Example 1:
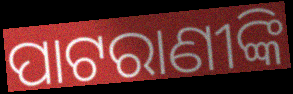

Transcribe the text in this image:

ପାଟରାଣୀଙ୍କି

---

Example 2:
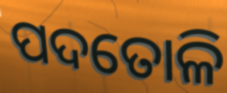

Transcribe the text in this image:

ପଦତୋଳି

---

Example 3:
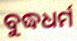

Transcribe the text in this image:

ବୁଦ୍ଧଧର୍ମ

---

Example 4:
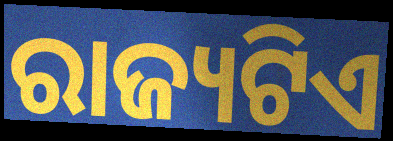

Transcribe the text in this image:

ରାଜ୍ୟଟିଏ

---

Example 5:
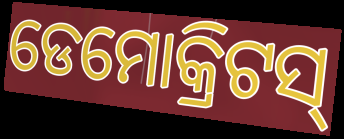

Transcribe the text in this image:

ଡେମୋକ୍ରିଟସ୍